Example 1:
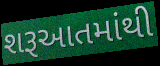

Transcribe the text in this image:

શરૂઆતમાંથી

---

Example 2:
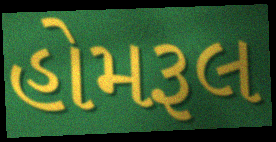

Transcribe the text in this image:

હોમરૂલ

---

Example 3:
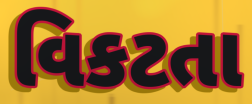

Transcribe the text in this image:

વિકટતા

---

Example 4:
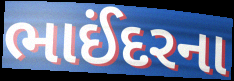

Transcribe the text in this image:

ભાઈંદરના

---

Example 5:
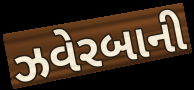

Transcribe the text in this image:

ઝવેરબાની